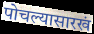
पोचल्यासारखं